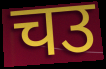
चउ